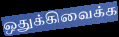
ஒதுக்கிவைக்க